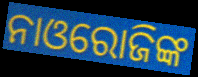
ନାଓରୋଜିଙ୍କ